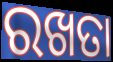
ରଖତା